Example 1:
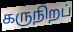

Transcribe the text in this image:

கருநிறப்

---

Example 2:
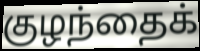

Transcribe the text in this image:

குழந்தைக்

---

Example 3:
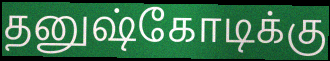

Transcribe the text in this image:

தனுஷ்கோடிக்கு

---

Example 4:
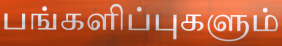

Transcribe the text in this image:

பங்களிப்புகளும்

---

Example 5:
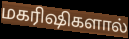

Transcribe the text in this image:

மகரிஷிகளால்